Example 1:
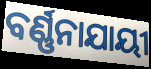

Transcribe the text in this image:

ବର୍ଣ୍ଣନାଯାୟୀ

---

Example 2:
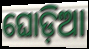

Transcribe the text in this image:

ଘୋଡ଼ିଆ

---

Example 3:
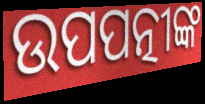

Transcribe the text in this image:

ଉପପତ୍ନୀଙ୍କ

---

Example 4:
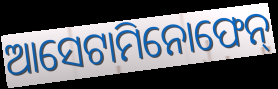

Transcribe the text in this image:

ଆସେଟାମିନୋଫେନ୍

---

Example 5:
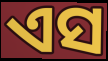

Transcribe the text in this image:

ଏସ